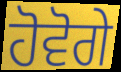
ਹੋਵੋਗੇ